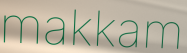
makkam